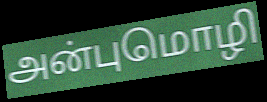
அன்புமொழி